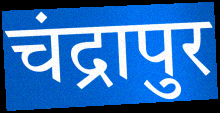
चंद्रापुर